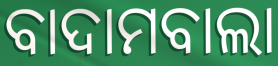
ବାଦାମବାଲା